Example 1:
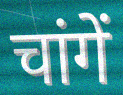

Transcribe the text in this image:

चांगें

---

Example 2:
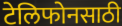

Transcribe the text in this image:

टेलिफोनसाठी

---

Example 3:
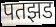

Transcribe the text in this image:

पतझड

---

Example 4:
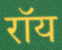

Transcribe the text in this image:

रॉय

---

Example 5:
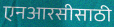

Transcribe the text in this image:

एनआरसीसाठी